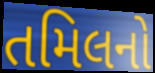
તમિલનો